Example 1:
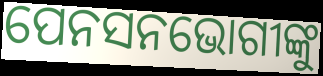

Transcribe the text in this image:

ପେନସନଭୋଗୀଙ୍କୁ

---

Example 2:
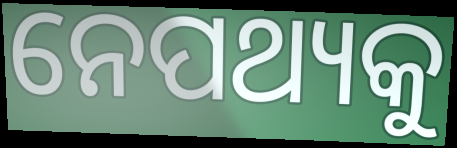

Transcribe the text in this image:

ନେପଥ୍ୟକୁ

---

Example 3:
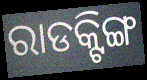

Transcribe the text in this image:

ରାଡକ୍ଟିଙ୍ଗ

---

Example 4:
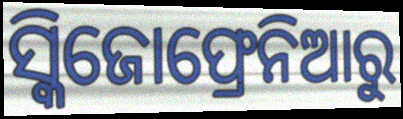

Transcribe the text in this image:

ସ୍କିଜୋଫ୍ରେନିଆରୁ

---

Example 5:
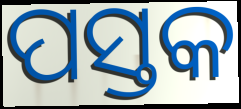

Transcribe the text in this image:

ପସ୍ତକ